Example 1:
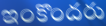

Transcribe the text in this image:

ఇంకొందరు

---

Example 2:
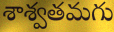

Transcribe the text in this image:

శాశ్వతమగు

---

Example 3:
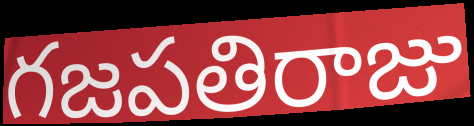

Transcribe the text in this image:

గజపతిరాజు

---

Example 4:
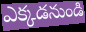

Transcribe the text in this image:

ఎక్కడనుండి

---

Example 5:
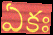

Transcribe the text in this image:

ఏకః